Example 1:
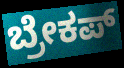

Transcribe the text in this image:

ಬ್ರೇಕಪ್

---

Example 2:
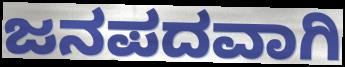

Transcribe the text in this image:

ಜನಪದವಾಗಿ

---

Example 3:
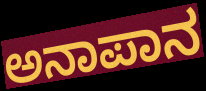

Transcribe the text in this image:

ಅನಾಪಾನ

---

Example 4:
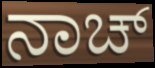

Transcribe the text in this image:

ನಾಚ್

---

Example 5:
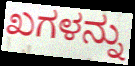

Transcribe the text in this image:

ಖಗಳನ್ನು